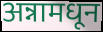
अन्नामधून